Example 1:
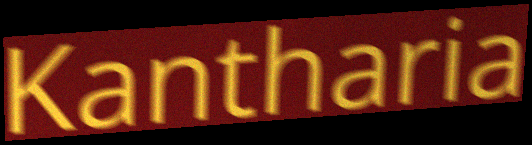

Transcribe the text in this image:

Kantharia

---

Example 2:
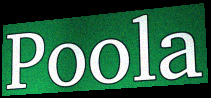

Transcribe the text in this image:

Poola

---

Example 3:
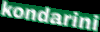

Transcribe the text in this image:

kondarini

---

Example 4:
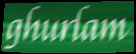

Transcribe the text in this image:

ghurlam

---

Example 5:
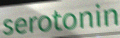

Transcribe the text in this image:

serotonin